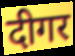
दीगर